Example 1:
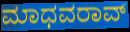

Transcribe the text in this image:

ಮಾಧವರಾವ್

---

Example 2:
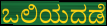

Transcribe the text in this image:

ಒಲಿಯದಡೆ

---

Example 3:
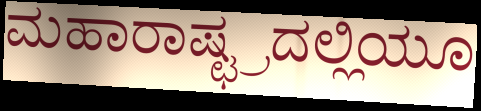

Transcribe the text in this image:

ಮಹಾರಾಷ್ಟ್ರದಲ್ಲಿಯೂ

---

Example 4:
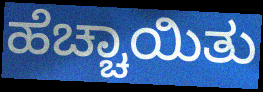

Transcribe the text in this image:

ಹೆಚ್ಚಾಯಿತು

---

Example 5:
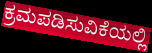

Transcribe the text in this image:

ಕ್ರಮಪಡಿಸುವಿಕೆಯಲ್ಲಿ